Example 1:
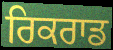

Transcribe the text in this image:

ਰਿਕਰਾਡ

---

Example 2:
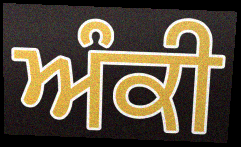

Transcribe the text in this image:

ਅੰਕੀ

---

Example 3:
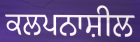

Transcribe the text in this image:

ਕਲਪਨਾਸ਼ੀਲ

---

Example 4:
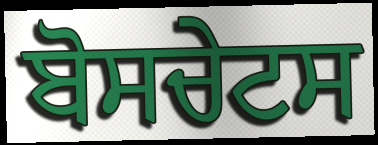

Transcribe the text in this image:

ਬੋਸਚੇਟਸ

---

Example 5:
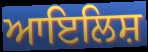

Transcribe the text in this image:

ਆਇਲਿਸ਼